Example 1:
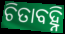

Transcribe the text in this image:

ଚିତାବହ୍ନି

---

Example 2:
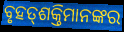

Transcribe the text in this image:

ବୃହତ୍‍ଶକ୍ତିମାନଙ୍କର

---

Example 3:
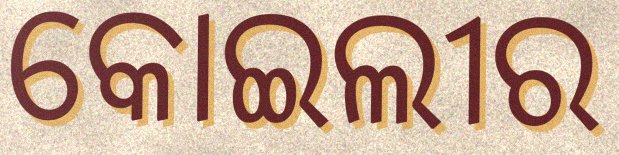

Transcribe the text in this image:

କୋଇଲୀର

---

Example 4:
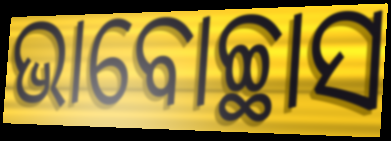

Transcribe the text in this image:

ଭାବୋଚ୍ଛାସ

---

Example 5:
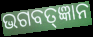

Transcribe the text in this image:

ଭଗବତ୍‌ଜ୍ଞାନ